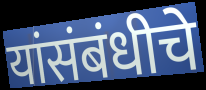
यांसंबंधीचे